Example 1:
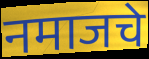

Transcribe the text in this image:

नमाजचे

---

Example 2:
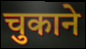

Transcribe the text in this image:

चुकाने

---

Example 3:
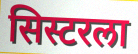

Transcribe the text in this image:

सिस्टरला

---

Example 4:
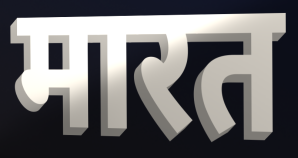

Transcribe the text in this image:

मारत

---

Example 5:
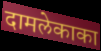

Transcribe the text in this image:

दामलेकाका